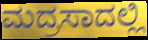
ಮದ್ರಸಾದಲ್ಲಿ